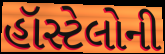
હૉસ્ટેલોની